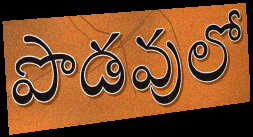
పొడవులో